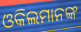
ଓକିଲମାନଙ୍କ